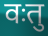
वःतु